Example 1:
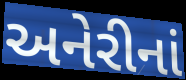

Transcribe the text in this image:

અનેરીનાં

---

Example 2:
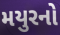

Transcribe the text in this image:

મયુરનો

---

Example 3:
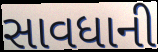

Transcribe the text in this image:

સાવધાની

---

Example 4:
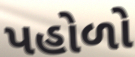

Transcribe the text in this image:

પહોળો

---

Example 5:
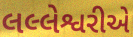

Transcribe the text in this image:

લલ્લેશ્વરીએ